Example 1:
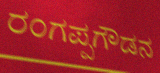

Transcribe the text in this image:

ರಂಗಪ್ಪಗೌಡನ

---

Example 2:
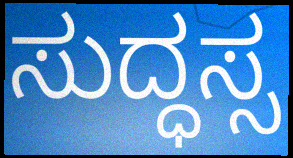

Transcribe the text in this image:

ಸುದ್ಧಸ್ಸ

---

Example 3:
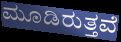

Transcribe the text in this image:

ಮೂಡಿರುತ್ತವೆ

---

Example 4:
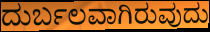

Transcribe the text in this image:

ದುರ್ಬಲವಾಗಿರುವುದು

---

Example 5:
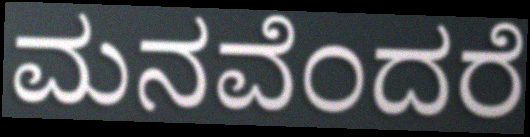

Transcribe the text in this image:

ಮನವೆಂದರೆ